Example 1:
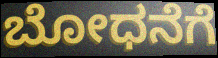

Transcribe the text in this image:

ಬೋಧನೆಗೆ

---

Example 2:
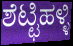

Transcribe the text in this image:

ಶೆಟ್ಟಿಹಳ್ಳಿ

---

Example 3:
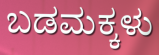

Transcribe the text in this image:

ಬಡಮಕ್ಕಳು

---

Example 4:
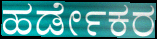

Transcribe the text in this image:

ಹರ್ಡೇಕರ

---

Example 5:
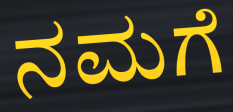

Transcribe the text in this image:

ನಮಗೆ